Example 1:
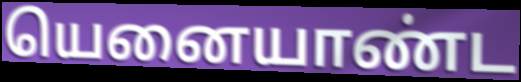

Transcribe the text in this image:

யெனையாண்ட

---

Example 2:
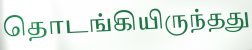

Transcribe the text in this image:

தொடங்கியிருந்தது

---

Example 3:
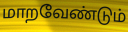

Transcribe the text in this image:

மாறவேண்டும்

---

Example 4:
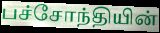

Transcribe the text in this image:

பச்சோந்தியின்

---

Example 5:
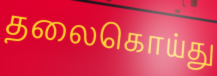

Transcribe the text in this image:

தலைகொய்து